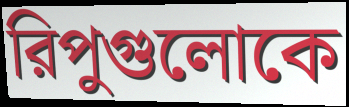
রিপুগুলোকে